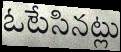
ఓటేసినట్లు